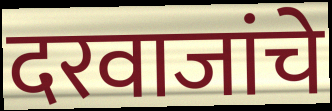
दरवाजांचे